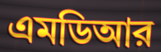
এমডিআর